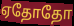
ஏதோதோ